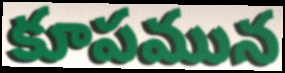
కూపమున